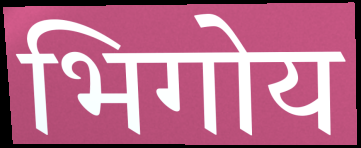
भिगोय